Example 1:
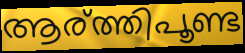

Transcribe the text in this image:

ആര്ത്തിപൂണ്ട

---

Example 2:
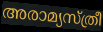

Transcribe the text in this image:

അരാമ്യസ്ത്രീ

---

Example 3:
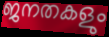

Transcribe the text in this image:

ജനതകളും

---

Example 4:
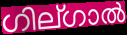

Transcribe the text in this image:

ഗില്ഗാൽ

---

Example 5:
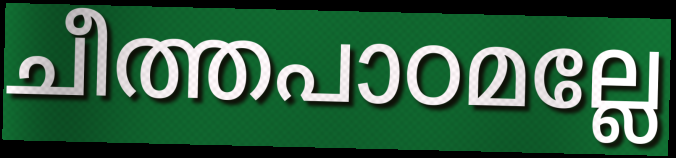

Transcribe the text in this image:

ചീത്തപാഠമല്ലേ